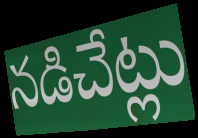
నడిచేట్లు